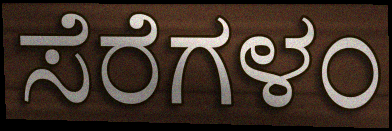
ಸೆರೆಗಳಂ